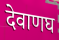
देवाणघ